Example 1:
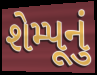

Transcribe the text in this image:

શેમ્પૂનું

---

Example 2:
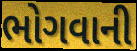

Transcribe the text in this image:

ભોગવાની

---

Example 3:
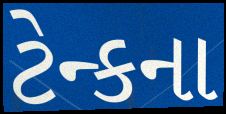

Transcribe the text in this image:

ટેન્કના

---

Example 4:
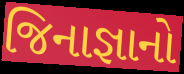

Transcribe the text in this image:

જિનાજ્ઞાનો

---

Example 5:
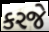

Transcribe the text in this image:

કરજે